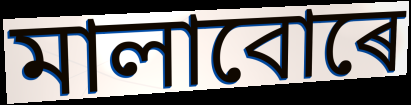
মালাবোৰে